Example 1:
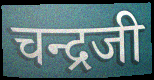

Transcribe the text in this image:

चन्द्रजी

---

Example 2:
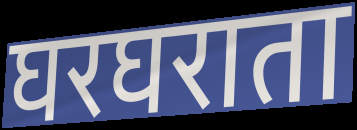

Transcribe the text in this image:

घरघराता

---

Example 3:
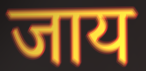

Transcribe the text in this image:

जाय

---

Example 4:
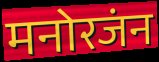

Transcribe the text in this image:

मनोरजंन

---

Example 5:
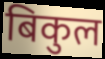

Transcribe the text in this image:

बिकुल